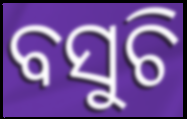
ବସୁଚି